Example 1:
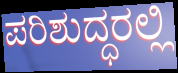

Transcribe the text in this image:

ಪರಿಶುದ್ಧರಲ್ಲಿ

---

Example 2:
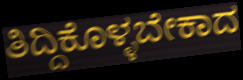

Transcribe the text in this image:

ತಿದ್ದಿಕೊಳ್ಳಬೇಕಾದ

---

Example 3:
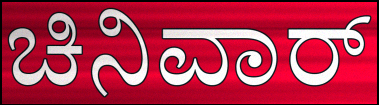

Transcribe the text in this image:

ಚಿನಿವಾರ್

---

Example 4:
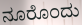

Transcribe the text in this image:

ನೂರೊಂದು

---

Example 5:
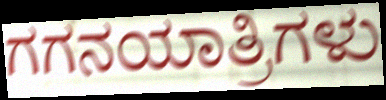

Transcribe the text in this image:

ಗಗನಯಾತ್ರಿಗಳು